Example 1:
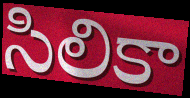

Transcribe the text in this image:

సిలికా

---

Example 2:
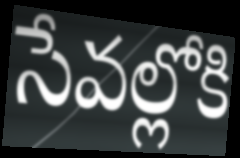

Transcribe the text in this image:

సేవల్లోకి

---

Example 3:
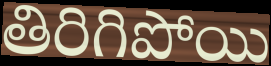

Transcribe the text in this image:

తిరిగిపోయి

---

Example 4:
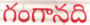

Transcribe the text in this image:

గంగానది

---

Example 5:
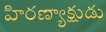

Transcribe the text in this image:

హిరణ్యాక్షుడు